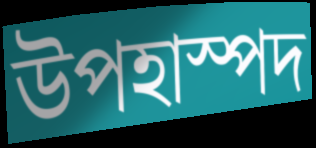
উপহাস্পদ